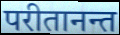
परीतानन्त